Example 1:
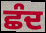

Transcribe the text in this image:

ਛੰਦ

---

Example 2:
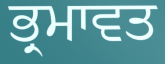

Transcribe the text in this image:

ਭ੍ਰਮਾਵਤ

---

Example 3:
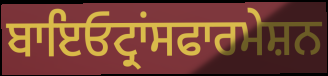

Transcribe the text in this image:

ਬਾਇਓਟ੍ਰਾਂਸਫਾਰਮੇਸ਼ਨ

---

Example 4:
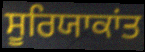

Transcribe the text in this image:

ਸੂਰਿਯਾਕਾਂਤ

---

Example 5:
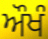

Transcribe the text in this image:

ਔਖੰ